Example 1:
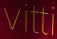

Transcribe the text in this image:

vitti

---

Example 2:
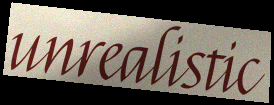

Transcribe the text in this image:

unrealistic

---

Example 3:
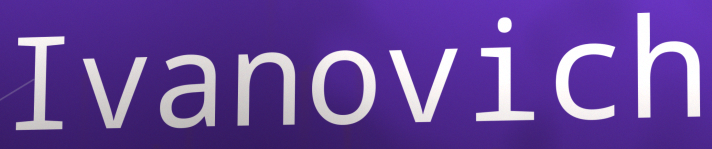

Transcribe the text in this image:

Ivanovich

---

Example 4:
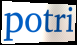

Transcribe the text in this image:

potri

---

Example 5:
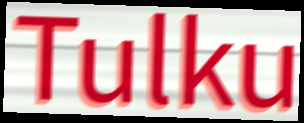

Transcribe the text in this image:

Tulku